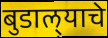
बुडाल्याचे